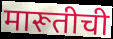
मारूतीची